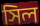
সিল